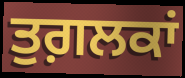
ਤੁਗ਼ਲਕਾਂ